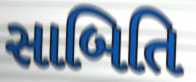
સાબિતિ